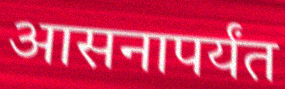
आसनापर्यंत